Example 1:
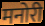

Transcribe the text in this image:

मनोरी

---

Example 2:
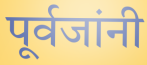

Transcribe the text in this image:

पूर्वजांनी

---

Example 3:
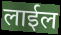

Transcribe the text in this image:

लाईल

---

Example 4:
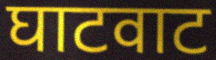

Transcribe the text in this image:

घाटवाट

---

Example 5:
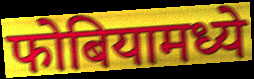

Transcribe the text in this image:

फोबियामध्ये